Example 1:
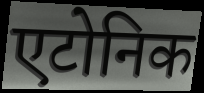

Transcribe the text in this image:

एटोनिक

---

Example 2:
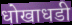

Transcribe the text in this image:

धोखाधडी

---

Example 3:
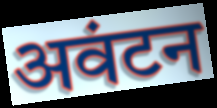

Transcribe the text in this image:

अवंटन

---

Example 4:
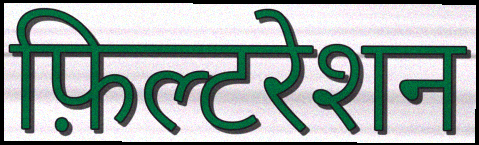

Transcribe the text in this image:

फ़िल्टरेशन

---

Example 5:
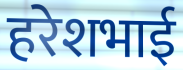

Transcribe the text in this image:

हरेशभाई